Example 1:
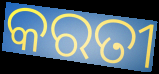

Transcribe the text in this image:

କରତୀ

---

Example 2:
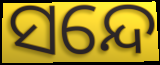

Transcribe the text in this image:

ସନ୍ଦେ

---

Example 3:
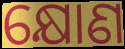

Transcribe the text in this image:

କ୍ଷୋଣ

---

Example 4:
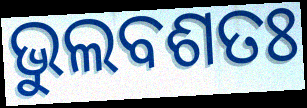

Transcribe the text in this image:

ଭୁଲବଶତଃ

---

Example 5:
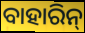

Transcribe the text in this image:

ବାହାରିନ୍